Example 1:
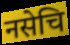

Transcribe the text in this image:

नसेचि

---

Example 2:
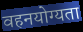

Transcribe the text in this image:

वहनयोग्यता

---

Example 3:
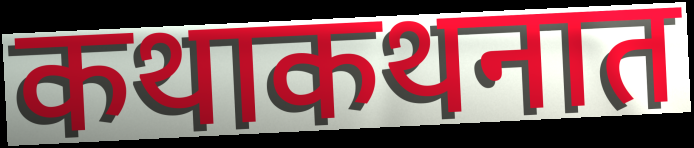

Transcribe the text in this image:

कथाकथनात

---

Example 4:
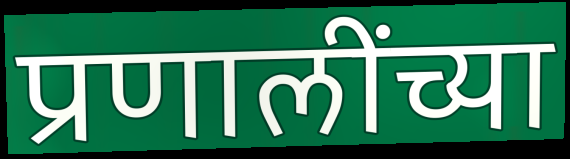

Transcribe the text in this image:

प्रणालींच्या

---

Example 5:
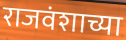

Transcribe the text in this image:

राजवंशाच्या